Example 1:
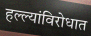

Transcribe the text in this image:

हल्ल्यांविरोधात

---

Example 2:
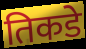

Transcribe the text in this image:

तिकडे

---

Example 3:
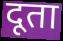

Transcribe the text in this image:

दूता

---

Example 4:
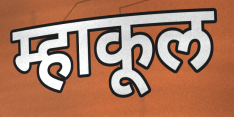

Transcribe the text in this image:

म्हाकूल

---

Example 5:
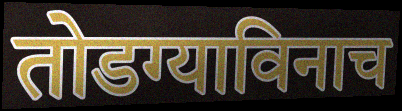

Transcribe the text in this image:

तोडग्याविनाच